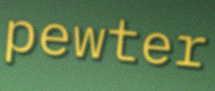
pewter